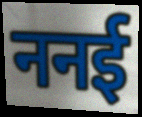
ननई